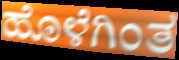
ಹೊಳೆಗಿಂತ